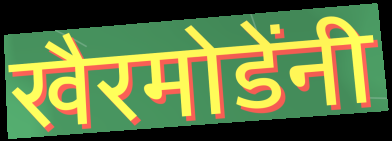
खैरमोडेंनी